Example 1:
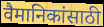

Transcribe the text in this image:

वैमानिकांसाठी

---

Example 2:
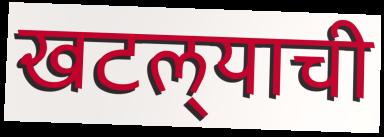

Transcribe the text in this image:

खटल्याची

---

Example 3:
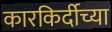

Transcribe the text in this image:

कारकिर्दीच्या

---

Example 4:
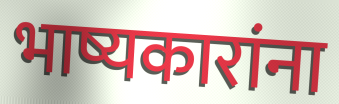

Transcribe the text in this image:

भाष्यकारांना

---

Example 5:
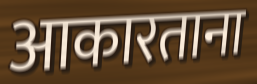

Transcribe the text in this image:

आकारताना